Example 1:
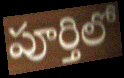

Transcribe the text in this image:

పూర్తిలో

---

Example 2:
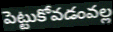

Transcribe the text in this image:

పెట్టుకోవడంవల్ల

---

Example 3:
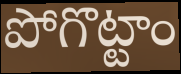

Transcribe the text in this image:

పోగొట్టాం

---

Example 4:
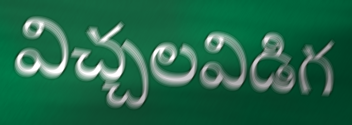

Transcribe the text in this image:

విచ్చలవిడిగ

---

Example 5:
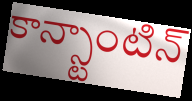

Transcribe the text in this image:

కాన్స్టాంటిన్